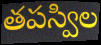
తపస్విల